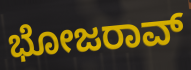
ಭೋಜರಾವ್